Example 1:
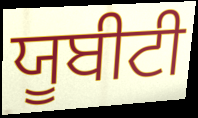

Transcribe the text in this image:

ਯੂਬੀਟੀ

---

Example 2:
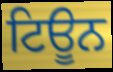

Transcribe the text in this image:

ਟਿਊਨ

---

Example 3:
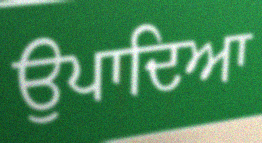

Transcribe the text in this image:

ਉਪਾਦਿਆ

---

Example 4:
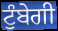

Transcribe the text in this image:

ਟੁੰਬੇਗੀ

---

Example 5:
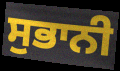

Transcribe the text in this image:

ਸੁਭਾਨੀ